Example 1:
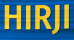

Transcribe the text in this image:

HIRJI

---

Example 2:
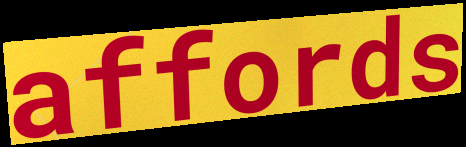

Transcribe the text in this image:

affords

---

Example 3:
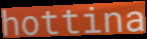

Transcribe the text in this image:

hottina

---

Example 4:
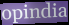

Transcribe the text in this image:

opindia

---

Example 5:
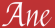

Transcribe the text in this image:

Ane